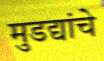
मुडद्यांचे